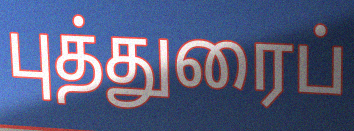
புத்துரைப்